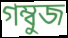
গম্বুজ